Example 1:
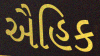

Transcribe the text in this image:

ઐહિક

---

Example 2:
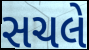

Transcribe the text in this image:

સચલે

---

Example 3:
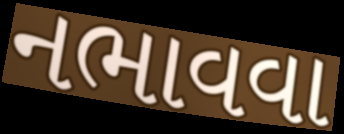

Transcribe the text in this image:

નભાવવા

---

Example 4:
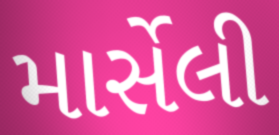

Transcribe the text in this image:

માર્સેલી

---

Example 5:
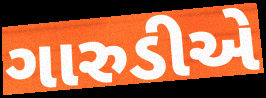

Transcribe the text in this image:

ગારુડીએ